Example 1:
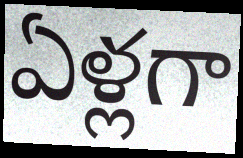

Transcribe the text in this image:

ఏళ్లగా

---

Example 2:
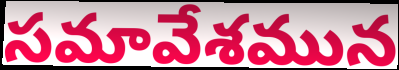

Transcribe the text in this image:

సమావేశమున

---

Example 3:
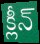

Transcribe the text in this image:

క్లీన్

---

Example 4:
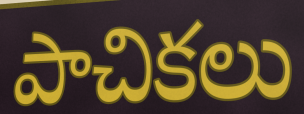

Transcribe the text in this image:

పాచికలు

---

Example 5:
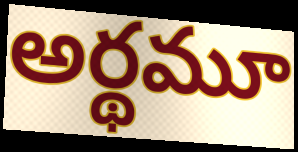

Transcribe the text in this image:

అర్థమూ